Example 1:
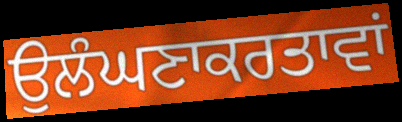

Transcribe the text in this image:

ਉਲੰਘਣਾਕਰਤਾਵਾਂ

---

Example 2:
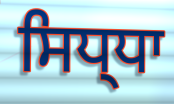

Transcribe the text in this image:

ਸਿਧ੍ਧਾ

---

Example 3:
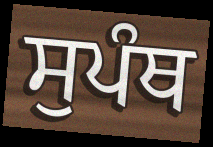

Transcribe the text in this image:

ਸੁਪੰਥ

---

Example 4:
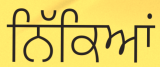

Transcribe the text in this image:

ਨਿੱਕਿਆਂ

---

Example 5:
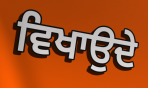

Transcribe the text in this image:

ਵਿਖਾਉਦੇ